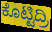
ಕೊಟ್ಟಿದ್ರಿ